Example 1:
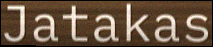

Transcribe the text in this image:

Jatakas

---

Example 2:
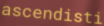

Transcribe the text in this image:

ascendisti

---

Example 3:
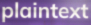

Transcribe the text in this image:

plaintext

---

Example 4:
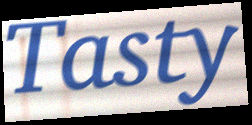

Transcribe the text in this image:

Tasty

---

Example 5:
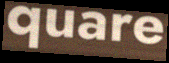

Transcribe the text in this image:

quare